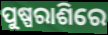
ପୁଷ୍ପରାଶିରେ